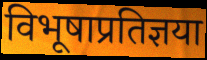
विभूषाप्रतिज्ञया